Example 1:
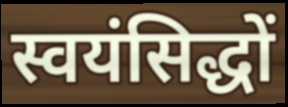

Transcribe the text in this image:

स्वयंसिद्धों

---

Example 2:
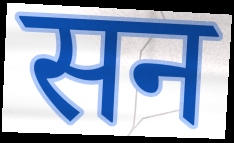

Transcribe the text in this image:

सन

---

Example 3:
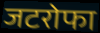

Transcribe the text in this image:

जटरोफा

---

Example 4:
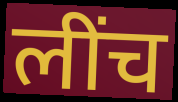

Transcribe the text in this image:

लींच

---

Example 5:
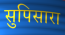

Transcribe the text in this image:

सुपिसारा